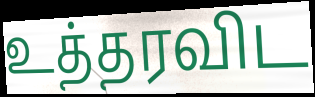
உத்தரவிட